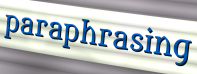
paraphrasing